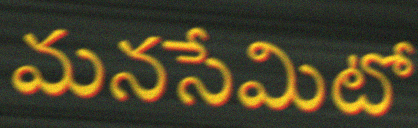
మనసేమిటో